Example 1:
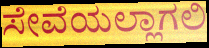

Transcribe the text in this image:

ಸೇವೆಯಲ್ಲಾಗಲಿ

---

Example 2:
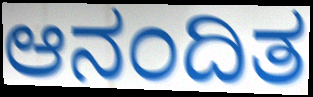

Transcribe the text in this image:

ಆನಂದಿತ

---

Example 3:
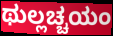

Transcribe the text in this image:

ಥುಲ್ಲಚ್ಚಯಂ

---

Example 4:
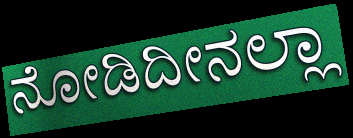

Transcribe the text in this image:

ನೋಡಿದೀನಲ್ಲಾ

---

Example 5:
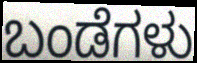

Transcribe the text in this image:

ಬಂಡೆಗಳು